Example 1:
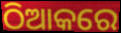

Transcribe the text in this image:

ଠିଆକରେ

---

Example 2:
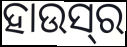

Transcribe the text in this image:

ହାଉସ୍‌ର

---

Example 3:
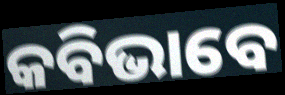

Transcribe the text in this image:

କବିଭାବେ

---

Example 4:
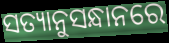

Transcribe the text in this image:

ସତ୍ୟାନୁସନ୍ଧାନରେ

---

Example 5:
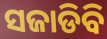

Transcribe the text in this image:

ସଜାଡିବି